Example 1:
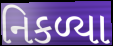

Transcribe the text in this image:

નિકળ્યા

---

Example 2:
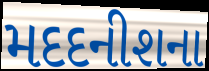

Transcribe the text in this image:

મદદનીશના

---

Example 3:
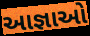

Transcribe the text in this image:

આજ્ઞાઓ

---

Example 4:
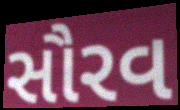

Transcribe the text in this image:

સૌરવ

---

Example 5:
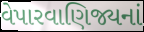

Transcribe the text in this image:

વેપારવાણિજ્યનાં